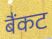
बैंकट